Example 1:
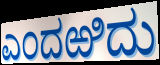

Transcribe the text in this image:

ಎಂದಱಿದು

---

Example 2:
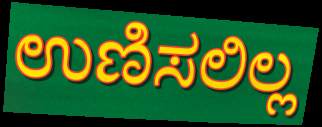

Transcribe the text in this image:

ಉಣಿಸಲಿಲ್ಲ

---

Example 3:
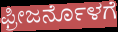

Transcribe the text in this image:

ಫ್ರೀಜರ್ನೊಳಗೆ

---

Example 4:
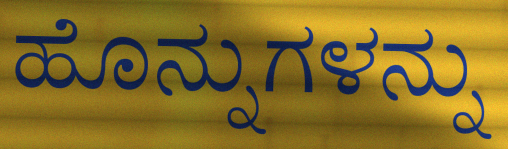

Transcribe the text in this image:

ಹೊನ್ನುಗಳನ್ನು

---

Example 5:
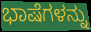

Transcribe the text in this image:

ಭಾಷೆಗಳನ್ನು